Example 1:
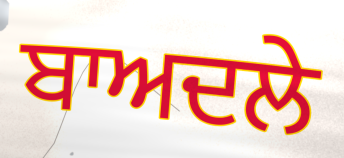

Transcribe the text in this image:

ਬਾਅਦਲੇ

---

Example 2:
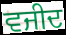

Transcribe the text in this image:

ਵਜੀਦ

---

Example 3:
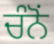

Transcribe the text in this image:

ਚੰਨੋਂ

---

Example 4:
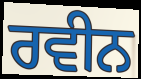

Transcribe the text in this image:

ਰਵੀਨ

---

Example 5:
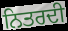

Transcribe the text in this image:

ਨਿਤਰਦੀ